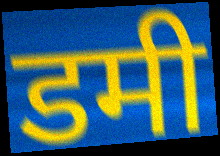
डमी